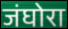
जंघोरा